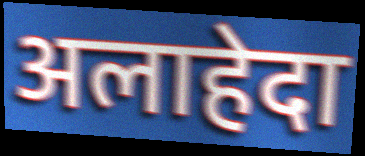
अलाहेदा